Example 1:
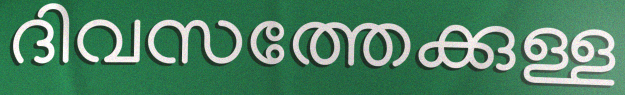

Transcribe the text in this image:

ദിവസത്തേക്കുള്ള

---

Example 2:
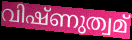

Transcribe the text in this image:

വിഷ്ണുത്വമ്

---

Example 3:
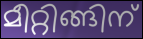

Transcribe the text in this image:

മീറ്റിങ്ങിന്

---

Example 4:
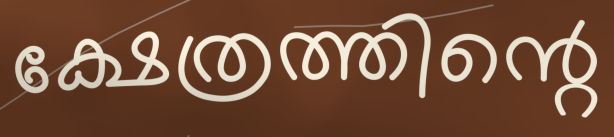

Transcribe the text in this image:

ക്ഷേത്രത്തിന്റെ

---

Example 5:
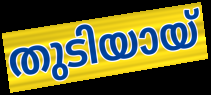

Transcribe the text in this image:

തുടിയായ്